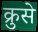
क्रुसे